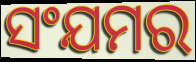
ସଂଯମର